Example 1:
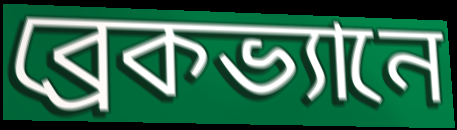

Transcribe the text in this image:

ব্রেকভ্যানে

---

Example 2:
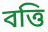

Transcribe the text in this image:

বত্তি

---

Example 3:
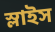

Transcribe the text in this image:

স্লাইস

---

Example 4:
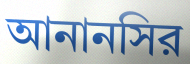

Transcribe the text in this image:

আনানসির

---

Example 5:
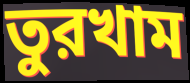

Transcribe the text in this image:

তুরখাম